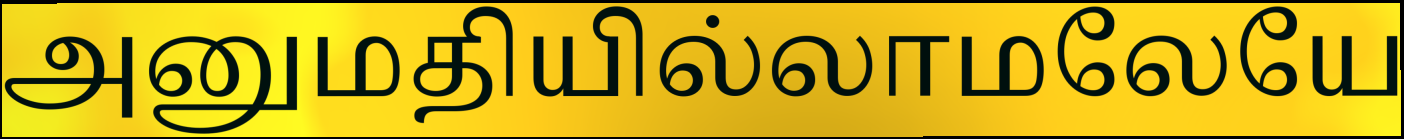
அனுமதியில்லாமலேயே